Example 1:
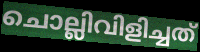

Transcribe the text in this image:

ചൊല്ലിവിളിച്ചത്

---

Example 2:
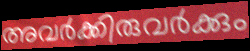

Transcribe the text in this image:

അവർക്കിരുവർക്കും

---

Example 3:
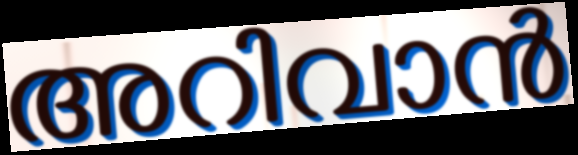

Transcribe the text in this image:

അറിവാൻ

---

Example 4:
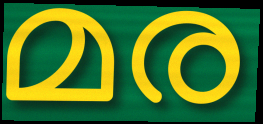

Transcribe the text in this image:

മര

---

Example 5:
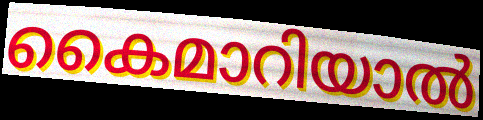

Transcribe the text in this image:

കൈമാറിയാൽ